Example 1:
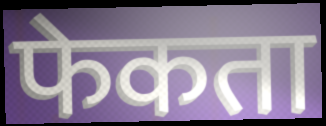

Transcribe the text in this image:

फेकता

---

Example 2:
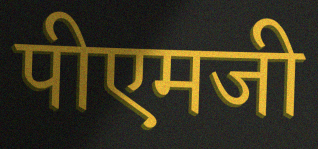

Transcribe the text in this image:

पीएमजी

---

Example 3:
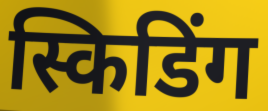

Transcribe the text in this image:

स्किडिंग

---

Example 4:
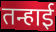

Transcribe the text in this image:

तन्हाई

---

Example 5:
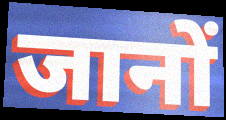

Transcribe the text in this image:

जानों